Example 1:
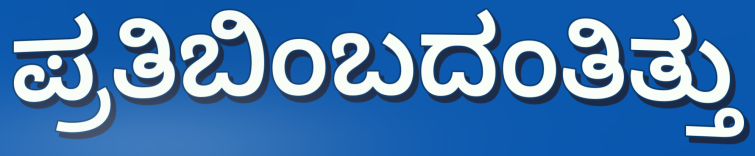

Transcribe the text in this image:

ಪ್ರತಿಬಿಂಬದಂತಿತ್ತು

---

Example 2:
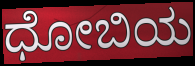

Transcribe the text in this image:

ಧೋಬಿಯ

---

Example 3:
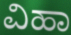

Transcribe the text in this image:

ವಿಹಾ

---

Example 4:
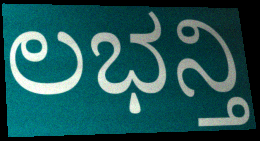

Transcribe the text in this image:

ಲಭನ್ತಿ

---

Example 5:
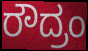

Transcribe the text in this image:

ರೌದ್ರಂ